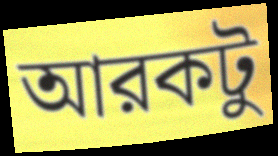
আরকটু